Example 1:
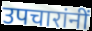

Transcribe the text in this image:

उपचारांनीं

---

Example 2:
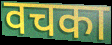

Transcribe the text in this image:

वचका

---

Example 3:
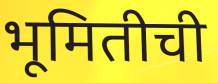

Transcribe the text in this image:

भूमितीची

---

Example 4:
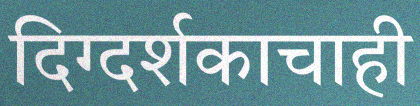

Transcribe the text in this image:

दिग्दर्शकाचाही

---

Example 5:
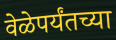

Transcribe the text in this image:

वेळेपर्यंतच्या